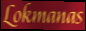
Lokmanas